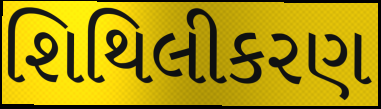
શિથિલીકરણ